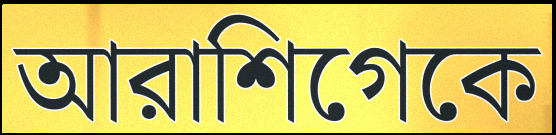
আরাশিগেকে